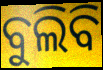
ବୁଲିବି